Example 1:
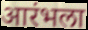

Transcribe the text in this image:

आरंभला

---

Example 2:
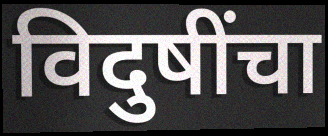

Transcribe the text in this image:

विदुषींचा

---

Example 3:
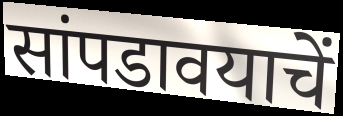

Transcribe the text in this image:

सांपडावयाचें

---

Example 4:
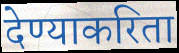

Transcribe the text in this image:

देण्याकरिता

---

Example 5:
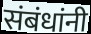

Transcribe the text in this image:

संबंधांनी